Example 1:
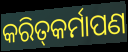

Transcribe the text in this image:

କରିତ୍‌କର୍ମାପଣ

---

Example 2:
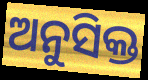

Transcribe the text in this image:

ଅନୁସିକ୍ତ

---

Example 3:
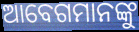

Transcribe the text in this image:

ଆବେଗମାନଙ୍କୁ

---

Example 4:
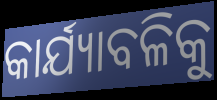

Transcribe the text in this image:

କାର୍ଯ୍ୟାବଳିକୁ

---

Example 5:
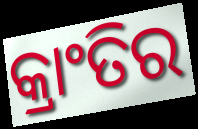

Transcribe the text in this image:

କ୍ରାଂତିର